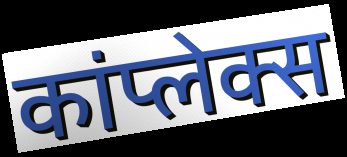
कांप्लेक्स